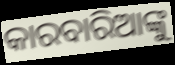
କାରବାରିଆଙ୍କୁ